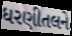
ધરણીતલને